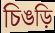
চিঙড়ি